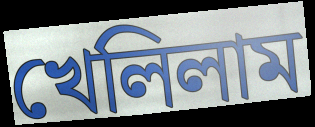
খেলিলাম